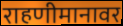
राहणीमानावर